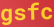
gsfc